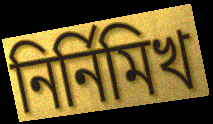
নির্নিমিখ